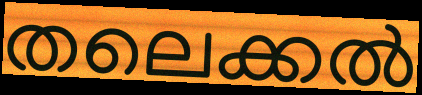
തലെക്കൽ